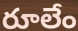
రూలేం